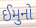
ઈમુનો